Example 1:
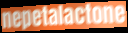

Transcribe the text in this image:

nepetalactone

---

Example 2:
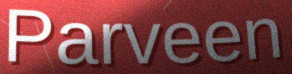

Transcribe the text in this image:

Parveen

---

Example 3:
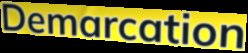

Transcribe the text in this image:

Demarcation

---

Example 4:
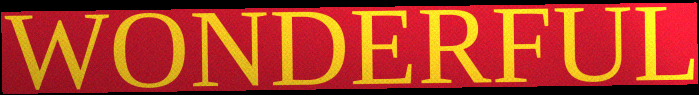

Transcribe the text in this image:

WONDERFUL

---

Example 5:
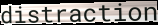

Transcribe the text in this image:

distraction